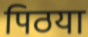
पिठया